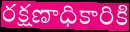
రక్షణాధికారికి